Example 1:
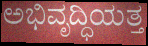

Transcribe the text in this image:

ಅಭಿವೃದ್ಧಿಯತ್ತ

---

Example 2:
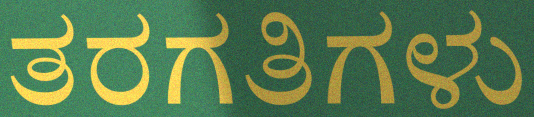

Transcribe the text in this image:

ತರಗತಿಗಳು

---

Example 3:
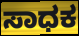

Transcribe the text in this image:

ಸಾಧಕ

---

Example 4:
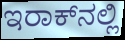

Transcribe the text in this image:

ಇರಾಕ್‌ನಲ್ಲಿ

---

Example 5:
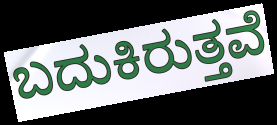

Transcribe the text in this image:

ಬದುಕಿರುತ್ತವೆ